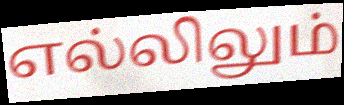
எல்லிலும்